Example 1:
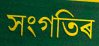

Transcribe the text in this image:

সংগতিৰ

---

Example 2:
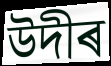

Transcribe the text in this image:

উদীৰ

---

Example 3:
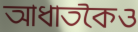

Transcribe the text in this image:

আধাতকৈও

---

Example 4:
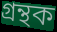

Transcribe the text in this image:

গ্ৰন্থক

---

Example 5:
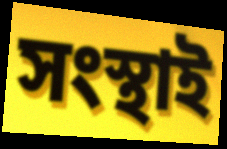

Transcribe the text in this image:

সংস্থাই